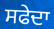
ਸਫੇਦਾ